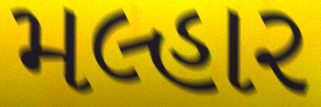
મલ્હાર